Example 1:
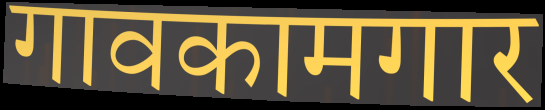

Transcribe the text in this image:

गावकामगार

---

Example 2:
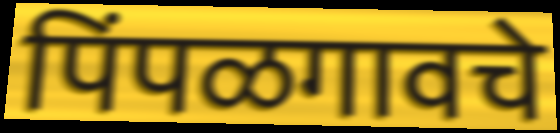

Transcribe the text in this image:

पिंपळगावचे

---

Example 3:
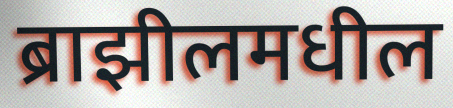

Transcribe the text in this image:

ब्राझीलमधील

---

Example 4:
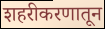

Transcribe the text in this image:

शहरीकरणातून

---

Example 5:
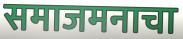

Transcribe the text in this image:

समाजमनाचा